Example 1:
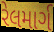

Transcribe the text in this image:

રેલમાર્ગ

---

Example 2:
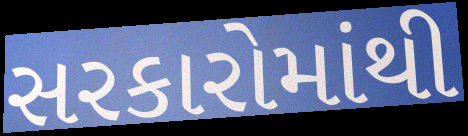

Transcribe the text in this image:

સરકારોમાંથી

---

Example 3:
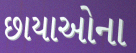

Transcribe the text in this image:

છાયાઓના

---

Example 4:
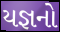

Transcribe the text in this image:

યજ્ઞનો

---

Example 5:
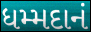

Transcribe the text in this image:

ધમ્મદાનં